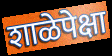
शाळेपेक्षा